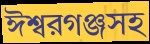
ঈশ্বরগঞ্জসহ